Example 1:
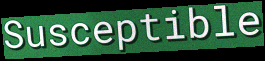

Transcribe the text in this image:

Susceptible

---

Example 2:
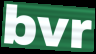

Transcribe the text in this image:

bvr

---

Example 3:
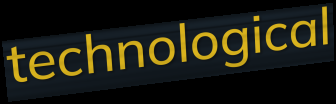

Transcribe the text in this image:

technological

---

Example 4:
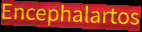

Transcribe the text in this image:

Encephalartos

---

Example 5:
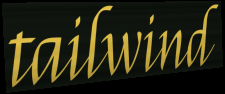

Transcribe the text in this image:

tailwind